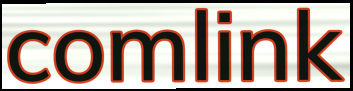
comlink